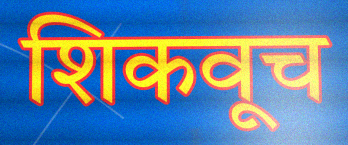
शिकवूच